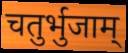
चतुर्भुजाम्